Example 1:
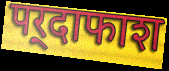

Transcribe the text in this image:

पर्दाफाश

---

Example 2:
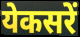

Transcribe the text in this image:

येकसरें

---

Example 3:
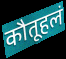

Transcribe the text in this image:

कौतूहलं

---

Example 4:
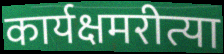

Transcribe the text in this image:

कार्यक्षमरीत्या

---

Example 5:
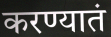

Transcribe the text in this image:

करण्यातं